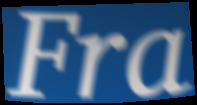
Fra